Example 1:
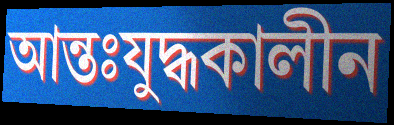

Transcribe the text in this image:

আন্তঃযুদ্ধকালীন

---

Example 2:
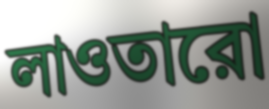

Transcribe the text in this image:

লাওতারো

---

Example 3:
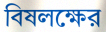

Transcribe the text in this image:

বিষলক্ষের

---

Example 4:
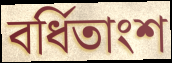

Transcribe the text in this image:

বর্ধিতাংশ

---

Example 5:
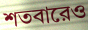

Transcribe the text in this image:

শতবারেও